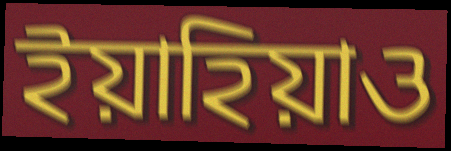
ইয়াহিয়াও